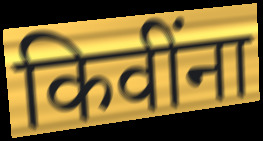
किवींना